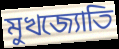
মুখজ্যোতি